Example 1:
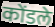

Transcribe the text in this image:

कोंडले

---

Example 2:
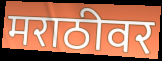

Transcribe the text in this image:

मराठीवर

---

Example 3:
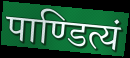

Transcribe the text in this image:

पाण्डित्यं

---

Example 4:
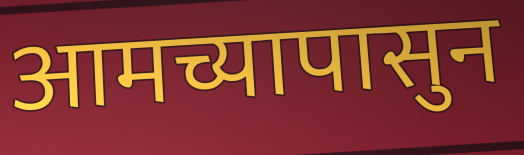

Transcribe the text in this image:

आमच्यापासुन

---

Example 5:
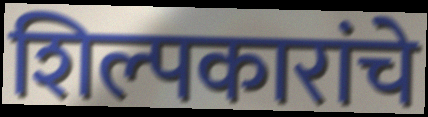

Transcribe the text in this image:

शिल्पकारांचे